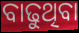
ବାଢୁଥିବା